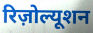
रिज़ोल्यूशन